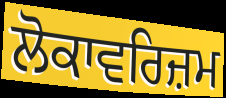
ਲੋਕਾਵਰਿਜ਼ਮ